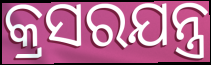
କ୍ରସରଯନ୍ତ୍ର